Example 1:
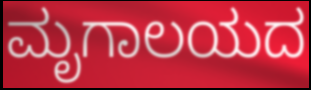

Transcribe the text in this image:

ಮೃಗಾಲಯದ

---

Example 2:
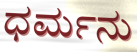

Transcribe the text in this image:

ಧರ್ಮನು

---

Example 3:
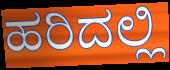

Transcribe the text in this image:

ಹರಿದಲ್ಲಿ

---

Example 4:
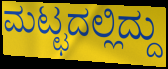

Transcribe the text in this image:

ಮಟ್ಟದಲ್ಲಿದ್ದು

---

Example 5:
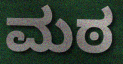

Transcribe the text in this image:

ಮಠ